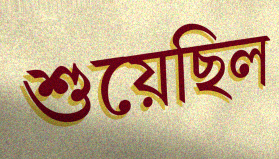
শুয়েছিল